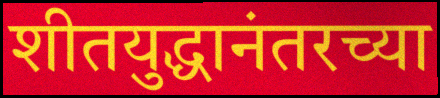
शीतयुद्धानंतरच्या